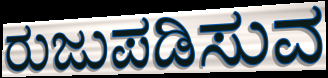
ರುಜುಪಡಿಸುವ